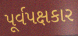
પૂર્વપક્ષકાર